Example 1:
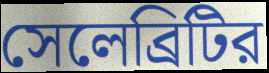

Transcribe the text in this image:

সেলেব্রিটির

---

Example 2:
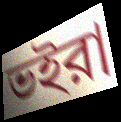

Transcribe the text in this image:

ভইরা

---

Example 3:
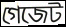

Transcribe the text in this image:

গেজেট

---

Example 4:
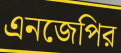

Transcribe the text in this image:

এনজেপির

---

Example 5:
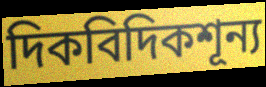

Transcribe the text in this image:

দিকবিদিকশূন্য